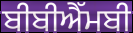
ਬੀਬੀਐੱਮਬੀ